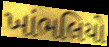
ખાંભલિયો